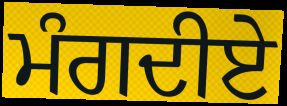
ਮੰਗਦੀਏ